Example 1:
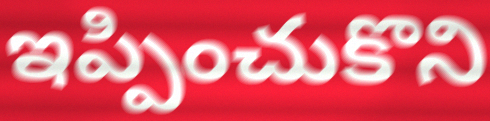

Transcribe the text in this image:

ఇప్పించుకొని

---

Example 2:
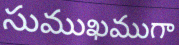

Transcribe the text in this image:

సుముఖముగా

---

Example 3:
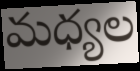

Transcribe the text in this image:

మధ్యల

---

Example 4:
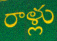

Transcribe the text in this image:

రాళ్లు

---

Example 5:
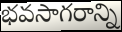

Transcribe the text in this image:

భవసాగరాన్ని